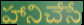
హానిచేసే